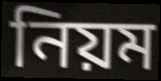
নিয়ম